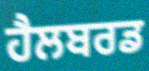
ਹੈਲਬਰਡ